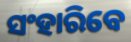
ସଂହାରିବେ